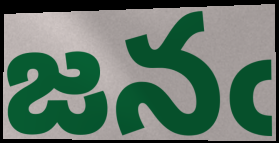
జనఁ